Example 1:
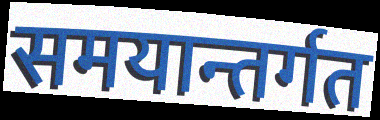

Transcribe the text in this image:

समयान्तर्गत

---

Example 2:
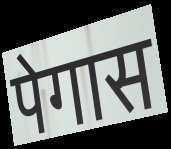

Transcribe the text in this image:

पेगास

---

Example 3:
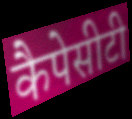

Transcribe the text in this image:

कैपेसीटी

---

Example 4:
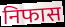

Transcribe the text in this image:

निफास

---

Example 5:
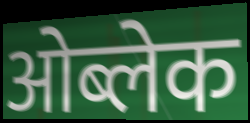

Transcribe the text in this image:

ओब्लेक